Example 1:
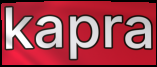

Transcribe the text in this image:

kapra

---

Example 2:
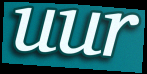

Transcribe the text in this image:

uur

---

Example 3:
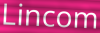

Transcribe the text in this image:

Lincom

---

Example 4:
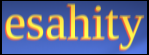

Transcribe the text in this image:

esahity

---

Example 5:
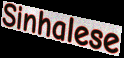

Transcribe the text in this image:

Sinhalese